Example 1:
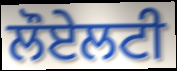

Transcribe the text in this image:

ਲੌਏਲਟੀ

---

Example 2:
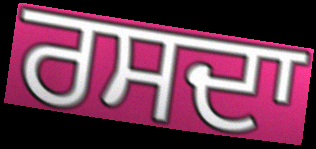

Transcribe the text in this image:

ਰਸਦਾ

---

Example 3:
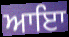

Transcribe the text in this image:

ਆਇਾ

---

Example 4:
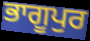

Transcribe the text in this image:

ਭਾਗੂਪੁਰ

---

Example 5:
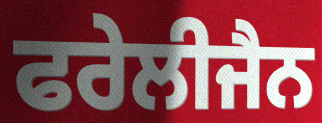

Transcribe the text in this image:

ਫਰੇਲੀਜੈਨ